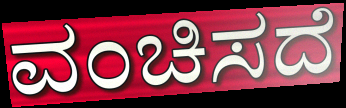
ವಂಚಿಸದೆ